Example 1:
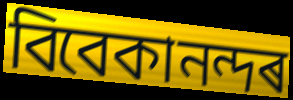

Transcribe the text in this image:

বিবেকানন্দৰ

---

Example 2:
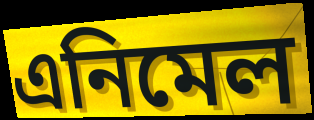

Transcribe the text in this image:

এনিমেল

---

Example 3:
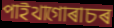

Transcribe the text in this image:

পাইথাগোৰাচৰ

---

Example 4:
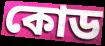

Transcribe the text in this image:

কোড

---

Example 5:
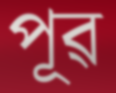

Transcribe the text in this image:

পূৱ